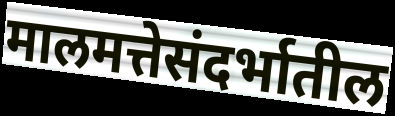
मालमत्तेसंदर्भातील